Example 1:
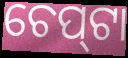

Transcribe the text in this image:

ଚେପ୍‌ଟା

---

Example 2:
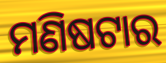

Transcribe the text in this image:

ମଣିଷଟାର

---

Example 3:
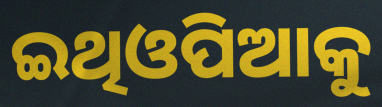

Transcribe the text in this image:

ଇଥିଓପିଆକୁ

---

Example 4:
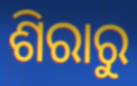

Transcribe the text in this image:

ଶିରାରୁ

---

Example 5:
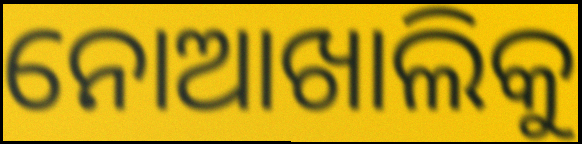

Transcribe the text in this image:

ନୋଆଖାଲିକୁ